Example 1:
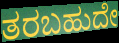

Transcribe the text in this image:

ತರಬಹುದೇ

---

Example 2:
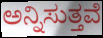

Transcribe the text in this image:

ಅನ್ನಿಸುತ್ತವೆ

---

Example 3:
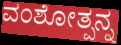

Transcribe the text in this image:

ವಂಶೋತ್ಪನ್ನ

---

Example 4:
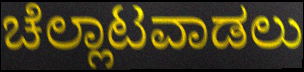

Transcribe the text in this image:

ಚೆಲ್ಲಾಟವಾಡಲು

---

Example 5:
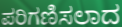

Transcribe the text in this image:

ಪರಿಗಣಿಸಲಾದ